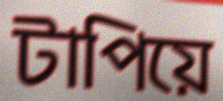
টাপিয়ে